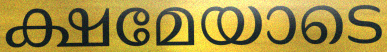
ക്ഷമേയാടെ